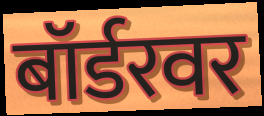
बॉर्डरवर